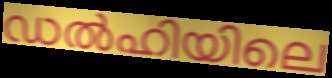
ഡൽഹിയിലെ